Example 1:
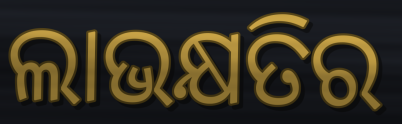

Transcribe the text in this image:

ଲାଭକ୍ଷତିର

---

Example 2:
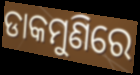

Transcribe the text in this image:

ଡାକମୁଣିରେ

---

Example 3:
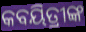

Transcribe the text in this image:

କବୟିତ୍ରୀଙ୍କ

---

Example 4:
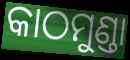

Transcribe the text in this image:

କାଠମୁଣ୍ଡା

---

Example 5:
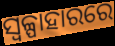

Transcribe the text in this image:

ସ୍ୱଳ୍ପାହାରରେ